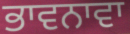
ਭਾਵਨਾਵਾ